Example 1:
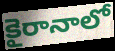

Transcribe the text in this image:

కైరానాలో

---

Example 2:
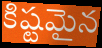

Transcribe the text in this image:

కిష్టమైన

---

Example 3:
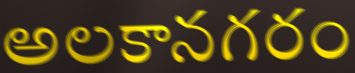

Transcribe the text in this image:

అలకానగరం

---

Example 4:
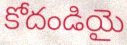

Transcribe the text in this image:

కోదండియై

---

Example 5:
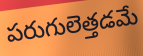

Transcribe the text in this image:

పరుగులెత్తడమే